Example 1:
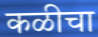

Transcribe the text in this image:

कळीचा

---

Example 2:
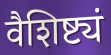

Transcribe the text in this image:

वैशिष्ट्यं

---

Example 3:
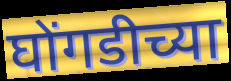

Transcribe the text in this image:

घोंगडीच्या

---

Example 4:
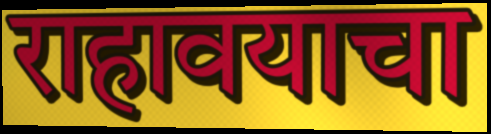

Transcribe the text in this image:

राहावयाचा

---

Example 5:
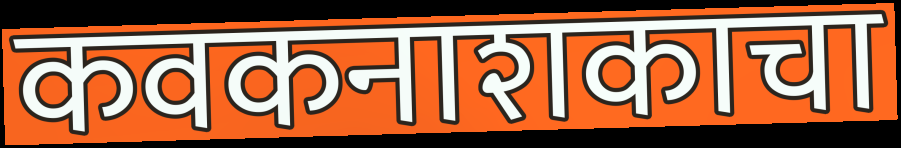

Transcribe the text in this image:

कवकनाशकाचा